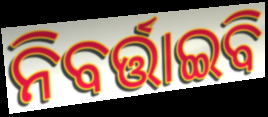
ନିବର୍ତ୍ତାଇବି